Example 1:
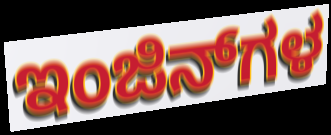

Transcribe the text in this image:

ಇಂಜಿನ್‌ಗಳ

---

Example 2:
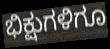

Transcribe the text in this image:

ಭಿಕ್ಷುಗಳಿಗೂ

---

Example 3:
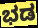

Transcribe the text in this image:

ಭಡ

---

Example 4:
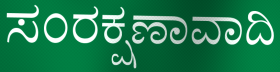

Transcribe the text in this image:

ಸಂರಕ್ಷಣಾವಾದಿ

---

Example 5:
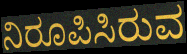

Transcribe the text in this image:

ನಿರೂಪಿಸಿರುವ